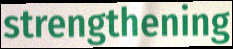
strengthening